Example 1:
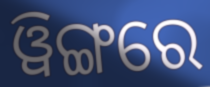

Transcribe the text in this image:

ୱିଙ୍ଗରେ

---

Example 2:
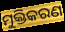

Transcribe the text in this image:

ମୁକ୍ତିକରଣ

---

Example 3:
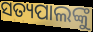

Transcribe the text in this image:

ସତ୍ୟପାଲଙ୍କୁ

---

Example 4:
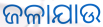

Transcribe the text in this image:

ଜଳାଯାଉ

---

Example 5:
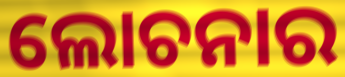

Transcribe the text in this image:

ଲୋଚନାର